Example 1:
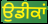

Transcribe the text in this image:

ਉਡੀਕਾਂ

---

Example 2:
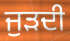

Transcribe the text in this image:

ਜੁੜਦੀ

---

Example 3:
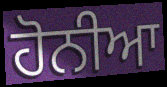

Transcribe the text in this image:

ਹੋਨੀਆ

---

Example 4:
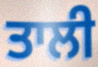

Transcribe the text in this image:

ਤਾਲੀ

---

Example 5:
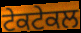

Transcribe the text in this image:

ਟੇਕਟੇਕਲ